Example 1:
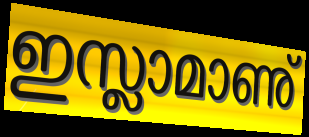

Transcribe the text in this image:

ഇസ്ലാമാണു്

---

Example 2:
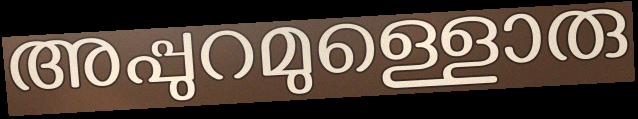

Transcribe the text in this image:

അപ്പുറമുള്ളൊരു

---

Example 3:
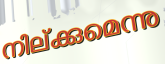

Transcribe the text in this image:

നില്ക്കുമെന്നു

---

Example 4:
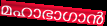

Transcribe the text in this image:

മഹാഭാഗാൻ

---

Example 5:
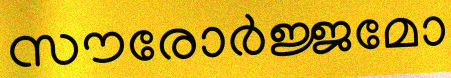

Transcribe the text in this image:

സൗരോർജ്ജമോ